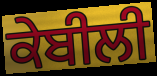
ਕੇਬੀਲੀ